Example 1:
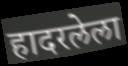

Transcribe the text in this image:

हादरलेला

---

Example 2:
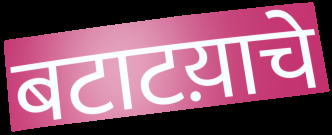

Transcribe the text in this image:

बटाटय़ाचे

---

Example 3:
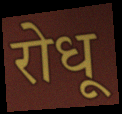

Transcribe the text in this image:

रोधू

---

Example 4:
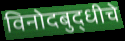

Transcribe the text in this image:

विनोदबुद्धीचे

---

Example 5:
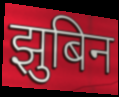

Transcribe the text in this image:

झुबिन